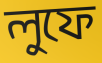
লুফে